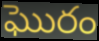
ఘొరం